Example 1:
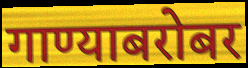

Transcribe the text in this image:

गाण्याबरोबर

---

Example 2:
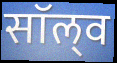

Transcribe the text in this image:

सॉल्व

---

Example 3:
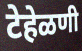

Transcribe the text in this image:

टेहेळणी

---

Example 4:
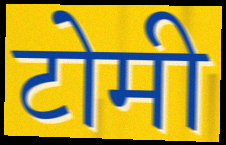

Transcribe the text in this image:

टोमी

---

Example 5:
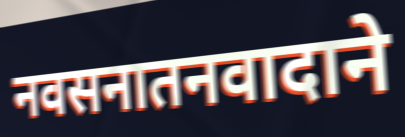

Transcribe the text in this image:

नवसनातनवादाने